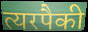
त्यरपैकी